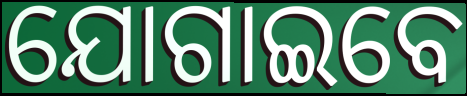
ଯୋଗାଇବେ